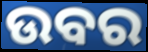
ଉବର